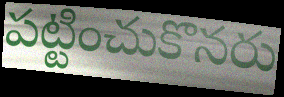
పట్టించుకొనరు